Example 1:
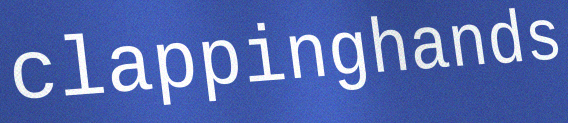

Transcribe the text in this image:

clappinghands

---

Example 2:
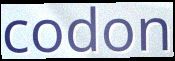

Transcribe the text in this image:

codon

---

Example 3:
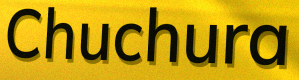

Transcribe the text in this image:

Chuchura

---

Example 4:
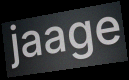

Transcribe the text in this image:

jaage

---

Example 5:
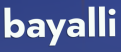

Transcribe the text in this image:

bayalli